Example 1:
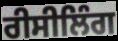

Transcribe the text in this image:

ਰੀਸੀਲਿੰਗ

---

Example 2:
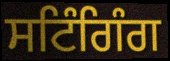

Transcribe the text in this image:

ਸਟਿੰਗਿੰਗ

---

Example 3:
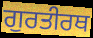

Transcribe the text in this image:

ਗੁਰਤੀਰਥ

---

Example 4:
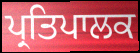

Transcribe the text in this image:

ਪ੍ਰਤਿਪਾਲਕ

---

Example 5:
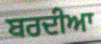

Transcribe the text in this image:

ਬਰਦੀਆ